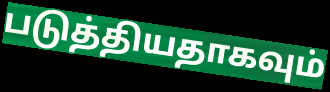
படுத்தியதாகவும்